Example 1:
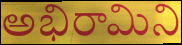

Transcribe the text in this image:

అభిరామిని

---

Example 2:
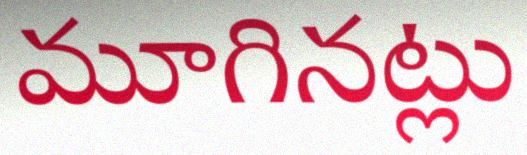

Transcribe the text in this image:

మూగినట్లు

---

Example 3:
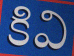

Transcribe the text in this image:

కివి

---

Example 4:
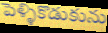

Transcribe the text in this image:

పెళ్ళికొడుకును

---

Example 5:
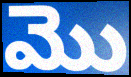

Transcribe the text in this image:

మొ